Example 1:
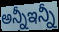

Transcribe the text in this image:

అన్నీఇన్నీ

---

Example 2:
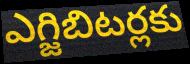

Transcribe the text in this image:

ఎగ్జిబిటర్లకు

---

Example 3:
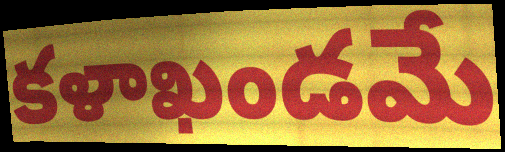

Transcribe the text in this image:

కళాఖండమే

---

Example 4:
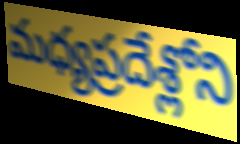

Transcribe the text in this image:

మధ్యప్రదేశ్లోని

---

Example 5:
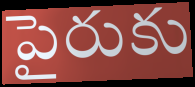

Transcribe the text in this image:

పైరుకు